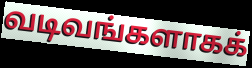
வடிவங்களாகக்